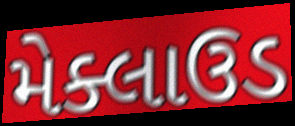
મેક્લાઉડ